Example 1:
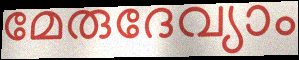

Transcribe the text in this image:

മേരുദേവ്യാം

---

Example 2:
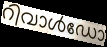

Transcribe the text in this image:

റിവാൾഡോ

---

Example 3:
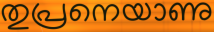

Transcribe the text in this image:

തുപ്രനെയാണു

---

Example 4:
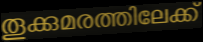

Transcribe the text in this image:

തൂക്കുമരത്തിലേക്ക്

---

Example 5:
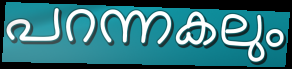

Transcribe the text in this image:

പറന്നകലും